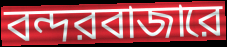
বন্দরবাজারে